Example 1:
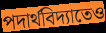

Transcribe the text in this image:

পদার্থবিদ্যাতেও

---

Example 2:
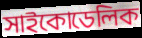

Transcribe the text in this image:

সাইকোডেলিক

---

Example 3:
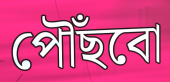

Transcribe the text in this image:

পৌঁছবো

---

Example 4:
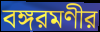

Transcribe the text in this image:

বঙ্গরমণীর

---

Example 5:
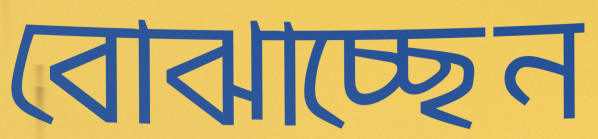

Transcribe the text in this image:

বোঝাচ্ছেন